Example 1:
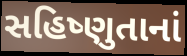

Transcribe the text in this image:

સહિષ્ણુતાનાં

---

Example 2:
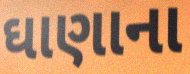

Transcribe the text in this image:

ઘાણાના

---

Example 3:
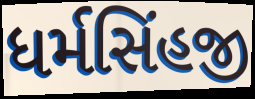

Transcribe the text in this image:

ધર્મસિંહજી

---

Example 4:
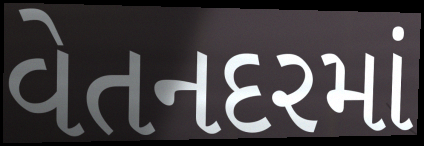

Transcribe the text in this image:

વેતનદરમાં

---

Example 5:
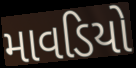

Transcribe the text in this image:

માવડિયો